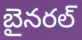
బైనరల్